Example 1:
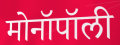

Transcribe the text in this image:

मोनॉपॉली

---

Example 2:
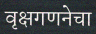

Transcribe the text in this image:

वृक्षगणनेचा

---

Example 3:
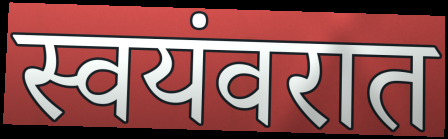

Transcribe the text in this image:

स्वयंवरात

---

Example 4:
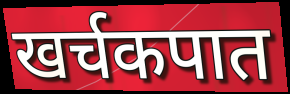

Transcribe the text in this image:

खर्चकपात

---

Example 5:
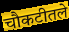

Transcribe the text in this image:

चौकटीतले